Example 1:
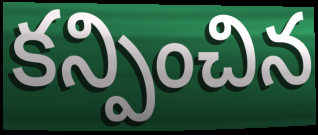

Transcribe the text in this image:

కన్పించిన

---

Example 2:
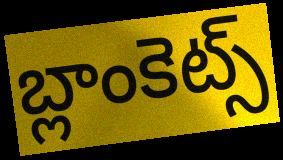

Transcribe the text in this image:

బ్లాంకెట్స్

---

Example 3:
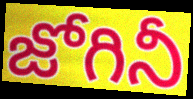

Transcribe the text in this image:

జోగినీ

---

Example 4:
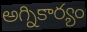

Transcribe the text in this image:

అగ్నికార్యం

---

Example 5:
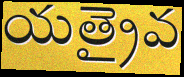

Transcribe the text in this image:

యత్రైవ